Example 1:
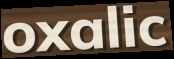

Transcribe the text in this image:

oxalic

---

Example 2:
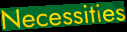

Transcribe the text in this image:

Necessities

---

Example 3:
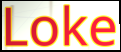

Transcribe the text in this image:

Loke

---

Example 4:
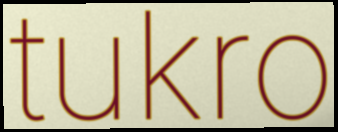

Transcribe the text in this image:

tukro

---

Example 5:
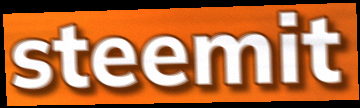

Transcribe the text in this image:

steemit